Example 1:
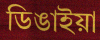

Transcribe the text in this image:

ডিঙাইয়া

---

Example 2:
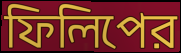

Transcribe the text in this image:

ফিলিপের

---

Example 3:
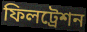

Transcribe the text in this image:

ফিলট্রেশন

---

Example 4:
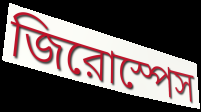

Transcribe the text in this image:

জিরোস্পেস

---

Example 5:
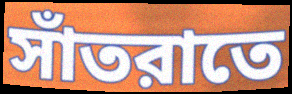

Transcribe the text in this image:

সাঁতরাতে